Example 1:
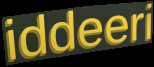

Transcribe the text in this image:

iddeeri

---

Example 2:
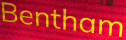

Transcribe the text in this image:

Bentham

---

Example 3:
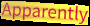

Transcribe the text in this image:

Apparently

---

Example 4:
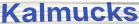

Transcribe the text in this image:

Kalmucks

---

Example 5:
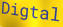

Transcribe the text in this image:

Digtal